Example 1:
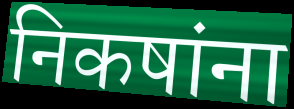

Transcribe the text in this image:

निकषांना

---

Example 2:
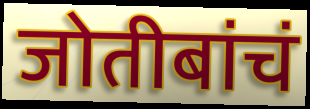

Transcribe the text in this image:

जोतीबांचं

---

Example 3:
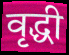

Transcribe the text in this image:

वृद्धी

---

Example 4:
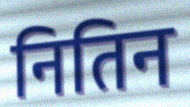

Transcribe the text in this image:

नितिन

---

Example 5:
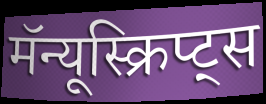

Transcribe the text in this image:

मॅन्यूस्क्रिप्ट्स